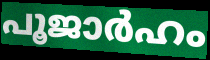
പൂജാർഹം